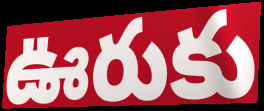
ఊరుకు